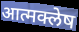
आत्मक्लेष